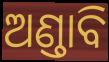
ଅଣ୍ଡାବି